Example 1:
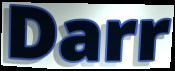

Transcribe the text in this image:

Darr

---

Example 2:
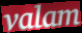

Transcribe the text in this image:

valam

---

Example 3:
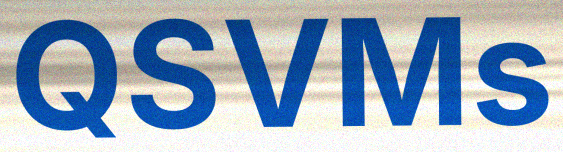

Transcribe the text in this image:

QSVMs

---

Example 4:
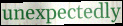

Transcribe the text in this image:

unexpectedly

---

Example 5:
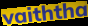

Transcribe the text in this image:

vaiththa